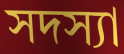
সদস্যা